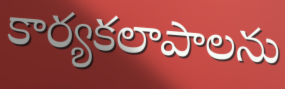
కార్యకలాపాలను